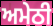
ਅਮੇਠੀ